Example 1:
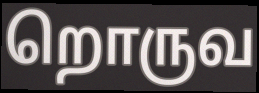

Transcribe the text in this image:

றொருவ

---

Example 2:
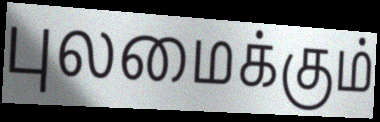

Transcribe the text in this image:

புலமைக்கும்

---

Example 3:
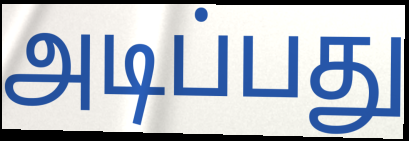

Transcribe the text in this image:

அடிப்பது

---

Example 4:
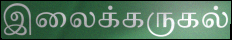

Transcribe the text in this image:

இலைக்கருகல்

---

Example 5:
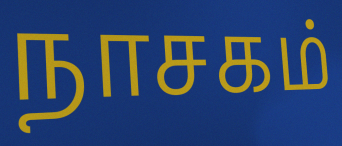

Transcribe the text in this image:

நாசகம்